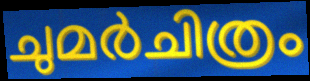
ചുമർചിത്രം